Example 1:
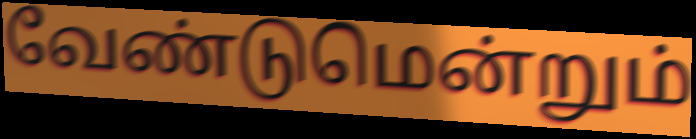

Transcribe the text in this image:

வேண்டுமென்றும்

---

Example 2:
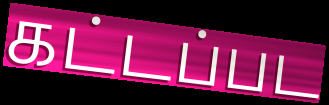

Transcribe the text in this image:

கட்டப்பட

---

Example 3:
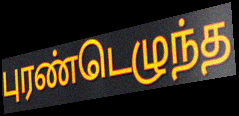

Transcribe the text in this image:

புரண்டெழுந்த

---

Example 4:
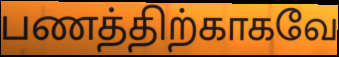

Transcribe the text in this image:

பணத்திற்காகவே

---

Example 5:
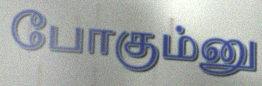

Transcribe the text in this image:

போகும்னு